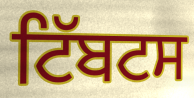
ਟਿੱਬਟਸ